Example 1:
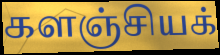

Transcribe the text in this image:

களஞ்சியக்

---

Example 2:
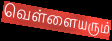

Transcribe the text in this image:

வெள்ளையரும்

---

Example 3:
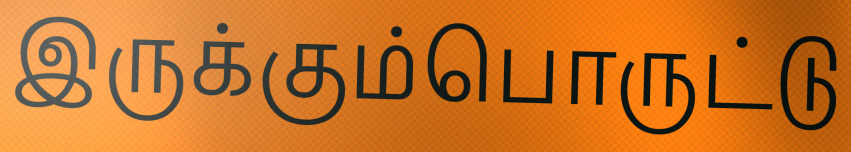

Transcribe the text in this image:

இருக்கும்பொருட்டு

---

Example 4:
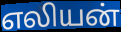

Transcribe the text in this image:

எலியன்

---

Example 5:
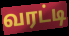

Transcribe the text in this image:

வரட்டி